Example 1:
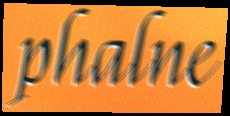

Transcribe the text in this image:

phalne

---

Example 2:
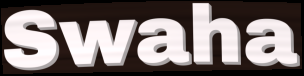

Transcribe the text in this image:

Swaha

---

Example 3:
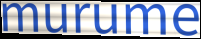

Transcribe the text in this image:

murume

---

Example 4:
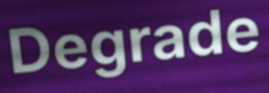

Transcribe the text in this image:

Degrade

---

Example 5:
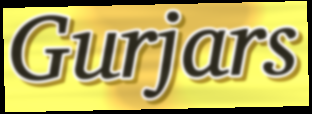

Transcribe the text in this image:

Gurjars